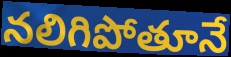
నలిగిపోతూనే